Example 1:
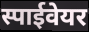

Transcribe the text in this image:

स्पाईवेयर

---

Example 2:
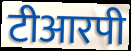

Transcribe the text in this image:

टीआरपी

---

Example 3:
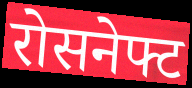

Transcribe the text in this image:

रोसनेफ्ट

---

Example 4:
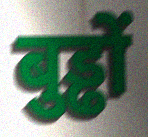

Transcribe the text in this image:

बुड्ढों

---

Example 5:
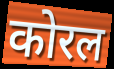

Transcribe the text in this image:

कोरल